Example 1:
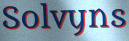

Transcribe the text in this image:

Solvyns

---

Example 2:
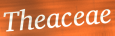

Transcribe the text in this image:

Theaceae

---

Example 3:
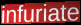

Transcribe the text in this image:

infuriate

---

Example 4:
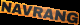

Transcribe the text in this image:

NAVRANG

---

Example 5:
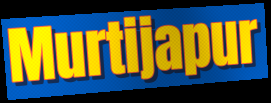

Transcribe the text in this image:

Murtijapur